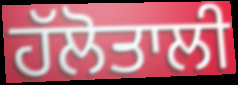
ਹੱਲੋਤਾਲੀ